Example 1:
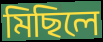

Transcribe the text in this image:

মিছিলে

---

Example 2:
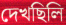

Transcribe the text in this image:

দেখছিলি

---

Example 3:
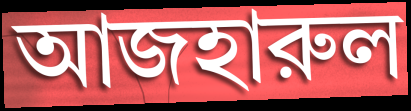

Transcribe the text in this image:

আজহারুল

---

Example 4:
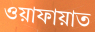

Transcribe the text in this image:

ওয়াফায়াত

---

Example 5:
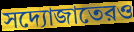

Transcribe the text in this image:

সদ্যোজাতেরও